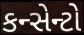
કન્સેન્ટો